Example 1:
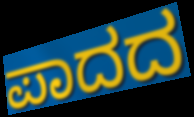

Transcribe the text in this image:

ಪಾದದ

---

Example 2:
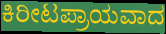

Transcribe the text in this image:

ಕಿರೀಟಪ್ರಾಯವಾದ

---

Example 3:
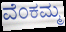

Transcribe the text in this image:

ವೆಂಕಮ್ಮ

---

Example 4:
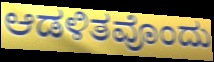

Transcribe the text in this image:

ಆಡಳಿತವೊಂದು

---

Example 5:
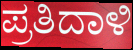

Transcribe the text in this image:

ಪ್ರತಿದಾಳಿ